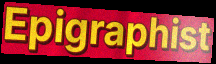
Epigraphist